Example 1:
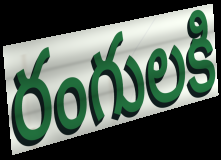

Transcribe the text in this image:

రంగులకి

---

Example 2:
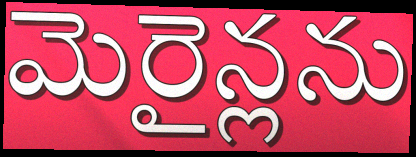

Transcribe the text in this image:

మెరైన్లను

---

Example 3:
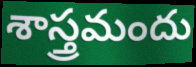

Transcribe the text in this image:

శాస్త్రమందు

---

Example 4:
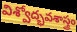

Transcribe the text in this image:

విశ్వోద్భవశాస్త్రం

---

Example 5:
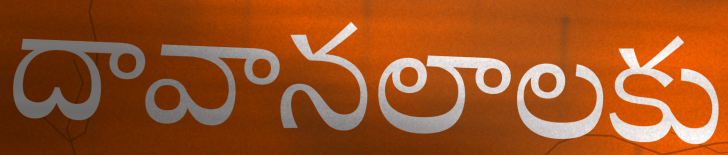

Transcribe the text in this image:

దావానలాలకు